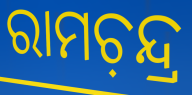
ରାମଚ଼ନ୍ଦ୍ର